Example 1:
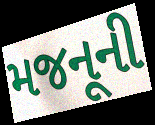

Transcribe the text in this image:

મજનૂની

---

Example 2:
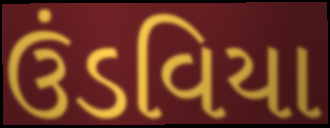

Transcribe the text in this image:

ઉંડવિયા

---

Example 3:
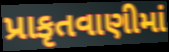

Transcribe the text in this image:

પ્રાકૃતવાણીમાં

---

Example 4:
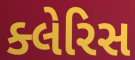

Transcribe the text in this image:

ક્લેરિસ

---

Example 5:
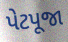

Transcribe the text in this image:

પેટપૂજા